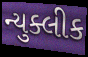
ન્યુક્લીક